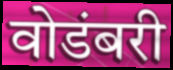
वोडंबरी